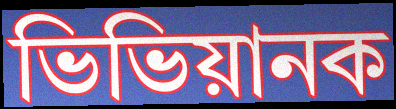
ভিভিয়ানক